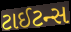
ટાઈટન્સ